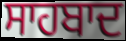
ਸਾਹਬਾਦ